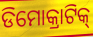
ଡିମୋକ୍ରାଟିକ୍